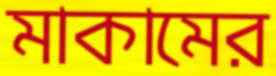
মাকামের